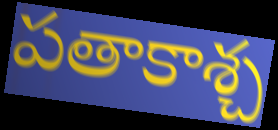
పతాకాశ్చ